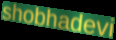
shobhadevi